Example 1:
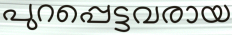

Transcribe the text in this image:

പുറപ്പെട്ടവരായ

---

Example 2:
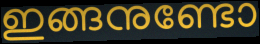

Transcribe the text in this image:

ഇങ്ങനുണ്ടോ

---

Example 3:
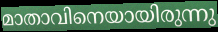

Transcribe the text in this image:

മാതാവിനെയായിരുന്നു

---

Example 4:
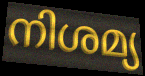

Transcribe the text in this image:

നിശമ്യ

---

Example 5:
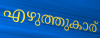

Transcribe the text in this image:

എഴുത്തുകാര്